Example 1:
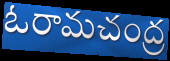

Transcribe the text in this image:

ఓరామచంద్ర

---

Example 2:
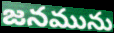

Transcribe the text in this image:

జనమును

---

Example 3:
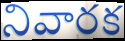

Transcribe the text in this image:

నివారక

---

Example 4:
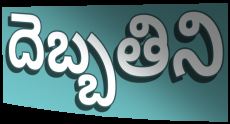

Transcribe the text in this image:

దెబ్బతిని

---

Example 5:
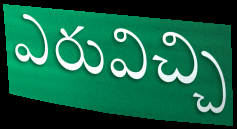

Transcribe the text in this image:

ఎరువిచ్చి